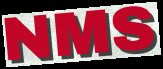
NMS